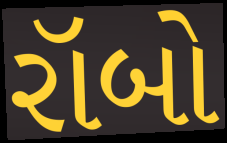
રૉબો